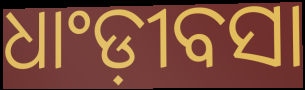
ଧାଂଡ଼ୀବସା